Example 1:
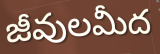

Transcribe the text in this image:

జీవులమీద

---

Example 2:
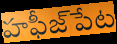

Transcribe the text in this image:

హఫీజ్‌పేట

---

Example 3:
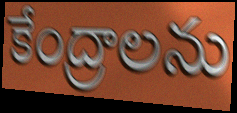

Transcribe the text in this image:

కేంద్రాలను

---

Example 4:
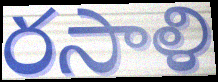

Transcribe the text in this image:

రసాళి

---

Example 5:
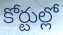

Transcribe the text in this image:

కోర్టుల్లో